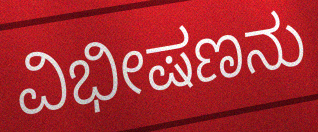
ವಿಭೀಷಣನು